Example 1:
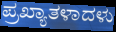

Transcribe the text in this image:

ಪ್ರಖ್ಯಾತಳಾದಳು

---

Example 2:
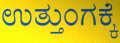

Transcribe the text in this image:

ಉತ್ತುಂಗಕ್ಕೆ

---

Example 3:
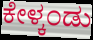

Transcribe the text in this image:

ಕೇಳ್ಕಂಡು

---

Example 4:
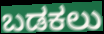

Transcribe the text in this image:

ಬಡಕಲು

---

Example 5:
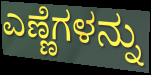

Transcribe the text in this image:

ಎಣ್ಣೆಗಳನ್ನು